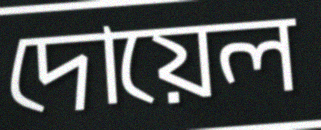
দোয়েল